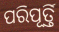
ପରିପୂର୍ତ୍ତି